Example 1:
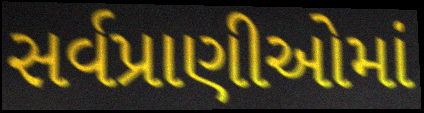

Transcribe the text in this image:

સર્વપ્રાણીઓમાં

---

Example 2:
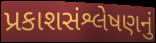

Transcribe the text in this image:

પ્રકાશસંશ્લેષણનું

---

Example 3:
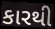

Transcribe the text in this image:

કારથી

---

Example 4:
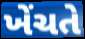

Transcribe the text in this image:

ખેંચતે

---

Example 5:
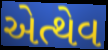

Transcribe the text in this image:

એત્થેવ